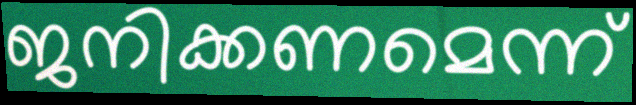
ജനിക്കണമെന്ന്